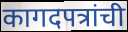
कागदपत्रांची